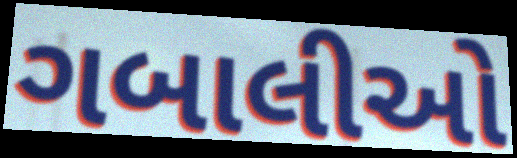
ગબાલીઓ